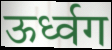
ऊर्ध्वग